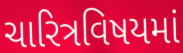
ચારિત્રવિષયમાં